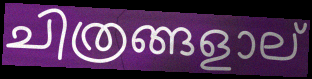
ചിത്രങ്ങളാല്